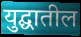
युद्घातील